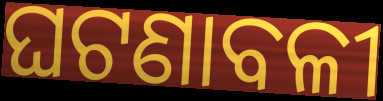
ଘଟଣାବଳୀ